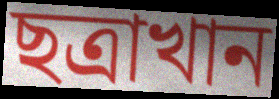
ছত্রাখান